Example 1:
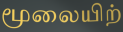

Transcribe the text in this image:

மூலையிற்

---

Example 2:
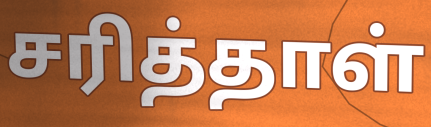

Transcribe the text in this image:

சரித்தாள்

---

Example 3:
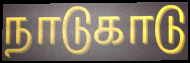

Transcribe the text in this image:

நாடுகாடு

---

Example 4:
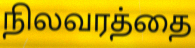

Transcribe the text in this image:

நிலவரத்தை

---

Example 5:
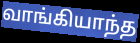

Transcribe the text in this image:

வாங்கியாந்த